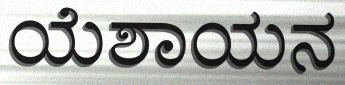
ಯೆಶಾಯನ